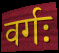
वर्गः